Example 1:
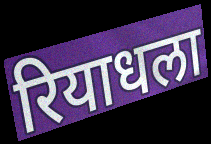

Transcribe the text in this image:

रियाधला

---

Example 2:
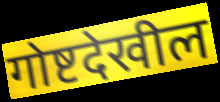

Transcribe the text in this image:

गोष्टदेखील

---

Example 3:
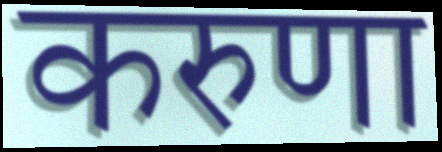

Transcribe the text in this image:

करुणा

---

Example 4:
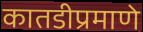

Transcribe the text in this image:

कातडीप्रमाणे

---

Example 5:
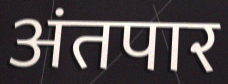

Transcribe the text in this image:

अंतपार